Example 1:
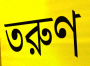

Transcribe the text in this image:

তরুণ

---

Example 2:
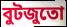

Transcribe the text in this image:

বুটজুতো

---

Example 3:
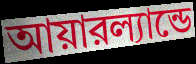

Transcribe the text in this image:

আয়ারল্যান্ডে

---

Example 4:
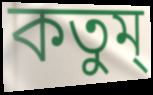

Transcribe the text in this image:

কতুম্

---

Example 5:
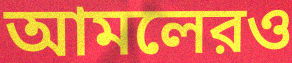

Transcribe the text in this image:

আমলেরও